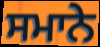
ਸਮਾਨੇ